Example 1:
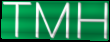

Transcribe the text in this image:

TMH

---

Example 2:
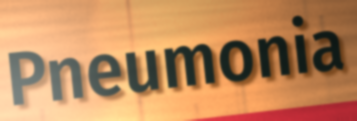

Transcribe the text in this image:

Pneumonia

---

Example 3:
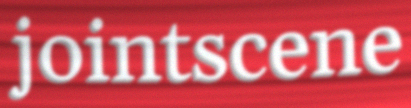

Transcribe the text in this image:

jointscene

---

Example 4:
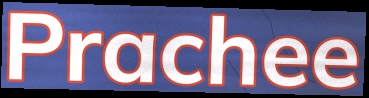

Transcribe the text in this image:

Prachee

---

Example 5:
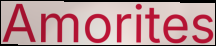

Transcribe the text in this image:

Amorites